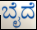
ಬೈದೆ